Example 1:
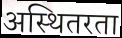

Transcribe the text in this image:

अस्थितरता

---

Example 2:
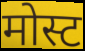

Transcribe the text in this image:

मोस्ट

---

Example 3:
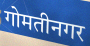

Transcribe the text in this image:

गोमतीनगर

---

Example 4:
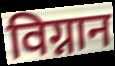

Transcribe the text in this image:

विग्नान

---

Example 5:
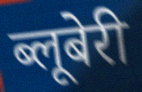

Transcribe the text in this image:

ब्लूबेरी